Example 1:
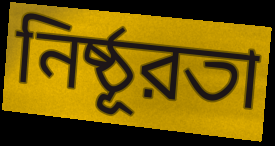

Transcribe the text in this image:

নিষ্ঠূরতা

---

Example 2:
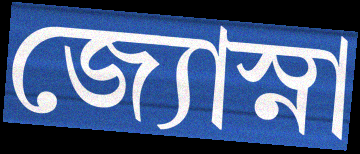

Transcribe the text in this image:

জ্যোস্না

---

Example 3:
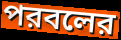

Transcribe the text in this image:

পরবলের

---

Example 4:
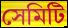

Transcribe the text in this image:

সেমিটি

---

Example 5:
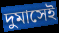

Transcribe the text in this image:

দুমাসেই